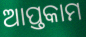
ଆପ୍ତକାମ